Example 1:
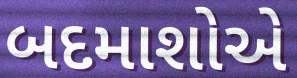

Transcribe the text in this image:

બદમાશોએ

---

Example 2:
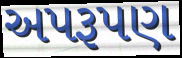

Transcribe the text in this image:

અપરૂપણ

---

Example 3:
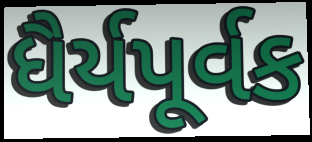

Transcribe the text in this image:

ધૈર્યપૂર્વક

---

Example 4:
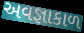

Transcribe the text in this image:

અવજ્ઞાકાળ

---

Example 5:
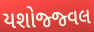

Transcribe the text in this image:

યશોજ્જ્વલ